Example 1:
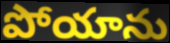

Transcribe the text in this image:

పోయాను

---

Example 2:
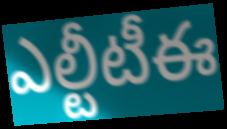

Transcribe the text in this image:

ఎల్టీటీఈ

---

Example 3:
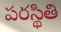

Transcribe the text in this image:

పరస్థితి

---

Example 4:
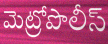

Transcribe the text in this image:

మెట్రోపొలీస్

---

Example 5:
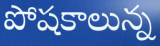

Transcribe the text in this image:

పోషకాలున్న